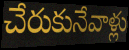
చేరుకునేవాళ్లు